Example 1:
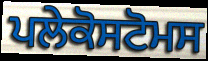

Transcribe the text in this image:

ਪਲੇਕੋਸਟੋਮਸ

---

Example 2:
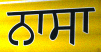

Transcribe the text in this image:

ਨਾਸਾ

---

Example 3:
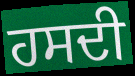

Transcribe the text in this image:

ਹਸਦੀ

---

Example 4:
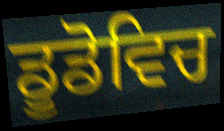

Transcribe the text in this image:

ਡੂਡੋਵਿਚ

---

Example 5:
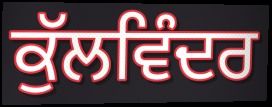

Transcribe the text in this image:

ਕੁੱਲਵਿੰਦਰ